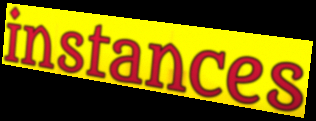
instances